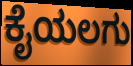
ಕೈಯಲಗು